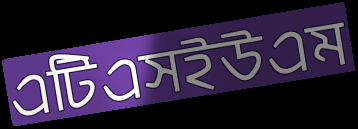
এটিএসইউএম